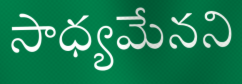
సాధ్యమేనని